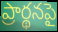
ప్రార్థనపై